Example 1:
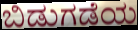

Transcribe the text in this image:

ಬಿಡುಗಡೆಯ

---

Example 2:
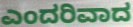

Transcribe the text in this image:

ಎಂದರಿವಾದ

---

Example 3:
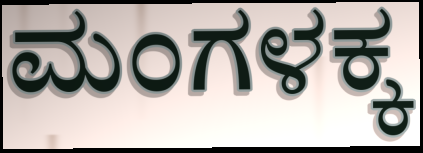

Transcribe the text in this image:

ಮಂಗಳಕ್ಕ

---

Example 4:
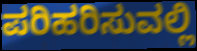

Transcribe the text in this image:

ಪರಿಹರಿಸುವಲ್ಲಿ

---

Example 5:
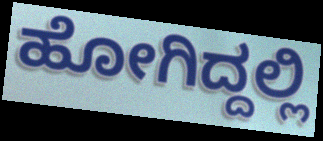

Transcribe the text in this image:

ಹೋಗಿದ್ದಲ್ಲಿ